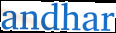
andhar